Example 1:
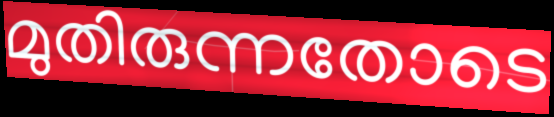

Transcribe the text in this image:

മുതിരുന്നതോടെ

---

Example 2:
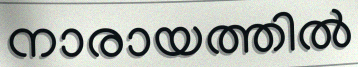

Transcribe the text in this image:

നാരായത്തിൽ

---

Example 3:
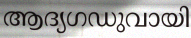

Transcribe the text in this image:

ആദ്യഗഡുവായി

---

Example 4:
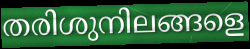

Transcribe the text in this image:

തരിശുനിലങ്ങളെ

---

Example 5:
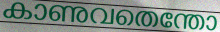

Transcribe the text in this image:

കാണുവതെന്തോ